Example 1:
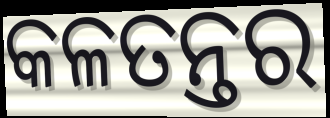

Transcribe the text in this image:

କଳତନ୍ତର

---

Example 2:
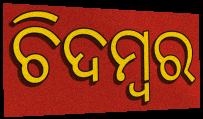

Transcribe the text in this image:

ଚିଦମ୍ବର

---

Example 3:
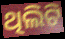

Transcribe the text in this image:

ଥିଲିଟି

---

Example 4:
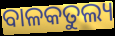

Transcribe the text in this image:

ବାଳକତୁଲ୍ୟ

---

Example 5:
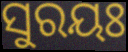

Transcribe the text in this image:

ସୁରୟଃ